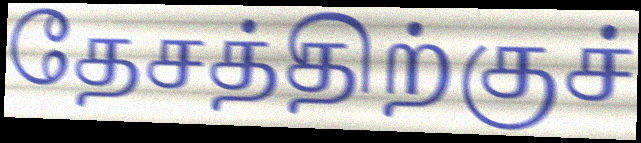
தேசத்திற்குச்